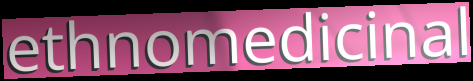
ethnomedicinal